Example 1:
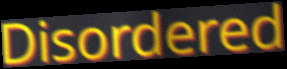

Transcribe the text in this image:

Disordered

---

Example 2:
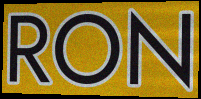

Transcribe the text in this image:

RON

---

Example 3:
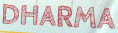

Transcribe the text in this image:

DHARMA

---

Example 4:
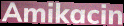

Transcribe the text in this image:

Amikacin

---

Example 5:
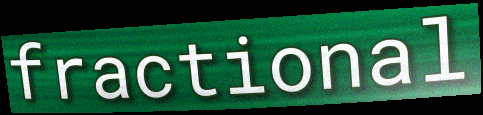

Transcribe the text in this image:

fractional